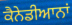
ਕੈਨੇਡੀਆਨਾਂ